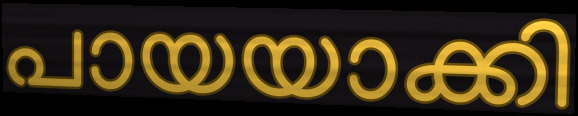
പായയാക്കി